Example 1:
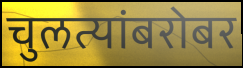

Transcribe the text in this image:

चुलत्यांबरोबर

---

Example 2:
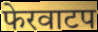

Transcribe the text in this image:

फेरवाटप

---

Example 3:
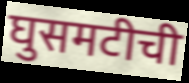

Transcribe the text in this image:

घुसमटीची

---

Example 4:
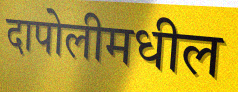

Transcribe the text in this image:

दापोलीमधील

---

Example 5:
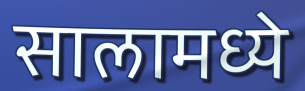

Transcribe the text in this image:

सालामध्ये